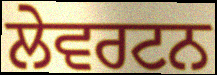
ਲੇਵਰਟਨ